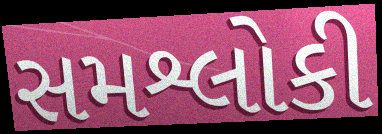
સમશ્લોકી